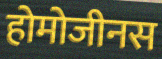
होमोजीनस